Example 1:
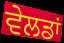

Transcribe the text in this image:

ਵੇਲਡਾਂ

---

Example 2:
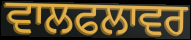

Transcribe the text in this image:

ਵਾਲਫਲਾਵਰ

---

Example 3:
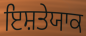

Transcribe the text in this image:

ਇਸ਼ਤੇਯਾਕ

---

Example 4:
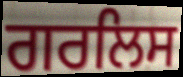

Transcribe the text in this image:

ਗਰਲਿਸ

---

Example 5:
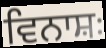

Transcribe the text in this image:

ਵਿਨਾਸ਼ਃ